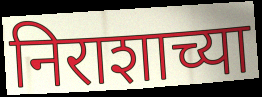
निराशाच्या